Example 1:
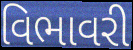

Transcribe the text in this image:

વિભાવરી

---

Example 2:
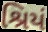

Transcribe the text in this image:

શ્રિયં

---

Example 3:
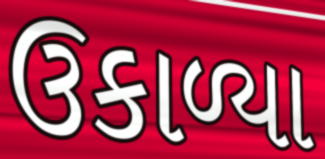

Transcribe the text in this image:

ઉકાળ્યા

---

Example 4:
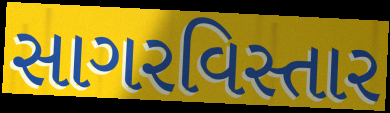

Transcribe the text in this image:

સાગરવિસ્તાર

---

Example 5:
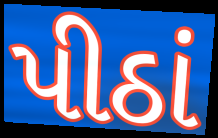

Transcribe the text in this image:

પીઠાં